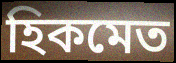
হিকমেত